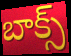
బాక్స్